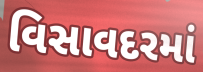
વિસાવદરમાં